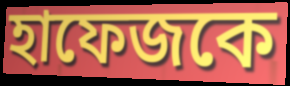
হাফেজকে